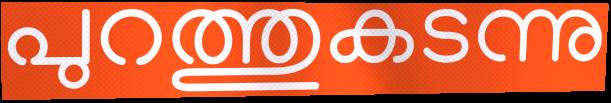
പുറത്തുകടന്നു